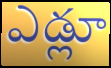
ఎడ్లూ